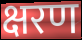
क्षरण